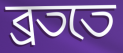
ব্রততে